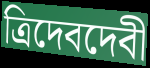
ত্রিদেবদেবী